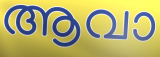
ആവാ